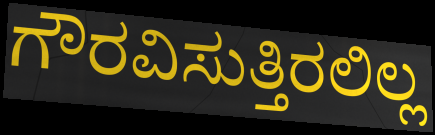
ಗೌರವಿಸುತ್ತಿರಲಿಲ್ಲ